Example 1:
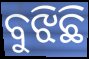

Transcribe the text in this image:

ବୁଝିଛି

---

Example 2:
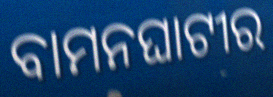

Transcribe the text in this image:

ବାମନଘାଟୀର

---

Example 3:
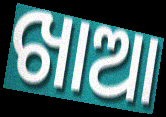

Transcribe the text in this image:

ଖାଆ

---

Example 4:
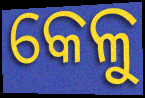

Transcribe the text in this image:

କେଳୁ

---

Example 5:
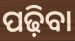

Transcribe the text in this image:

ପଢ଼ିବା